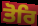
ਤੋਰਿ